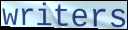
writers